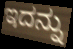
ಇದನ್ನು